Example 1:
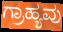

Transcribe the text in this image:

ಗ್ರಾಹ್ಯವು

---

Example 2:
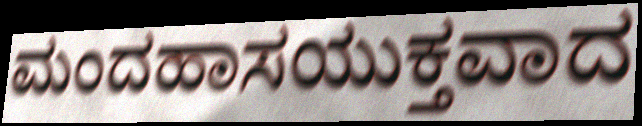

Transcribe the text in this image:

ಮಂದಹಾಸಯುಕ್ತವಾದ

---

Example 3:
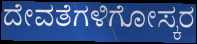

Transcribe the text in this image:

ದೇವತೆಗಳಿಗೋಸ್ಕರ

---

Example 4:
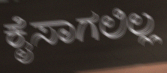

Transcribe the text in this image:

ಕೈಸಾಗಲಿಲ್ಲ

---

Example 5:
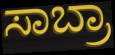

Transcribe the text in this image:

ಸಾಬ್ರಾ